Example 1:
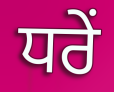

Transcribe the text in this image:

ਧਰੇਂ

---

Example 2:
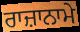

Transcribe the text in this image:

ਰਾਜ਼ਾਨਾਮੇ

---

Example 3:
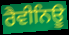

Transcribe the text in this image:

ਰੈਵੀਨਿਊ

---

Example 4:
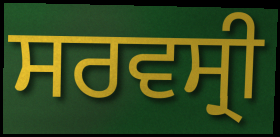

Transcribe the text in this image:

ਸਰਵਸ੍ਰੀ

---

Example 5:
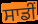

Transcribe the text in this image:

ਸਾਡੀਂ